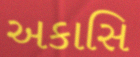
અકાસિ